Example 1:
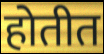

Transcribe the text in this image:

होतीत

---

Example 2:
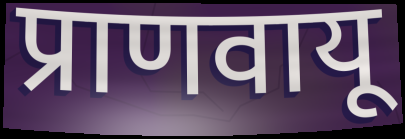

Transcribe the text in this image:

प्राणवायू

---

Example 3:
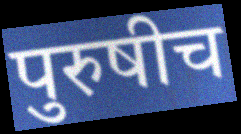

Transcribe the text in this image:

पुरुषीच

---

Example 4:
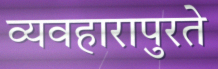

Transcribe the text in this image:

व्यवहारापुरते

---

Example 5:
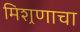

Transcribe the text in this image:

मिश्रणाचा